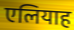
एलियाह